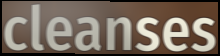
cleanses